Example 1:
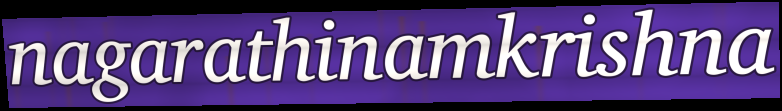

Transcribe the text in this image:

nagarathinamkrishna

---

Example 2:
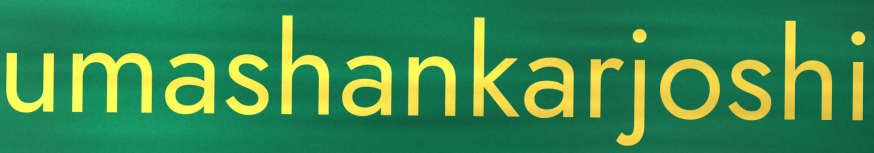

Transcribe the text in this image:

umashankarjoshi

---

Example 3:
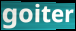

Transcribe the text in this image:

goiter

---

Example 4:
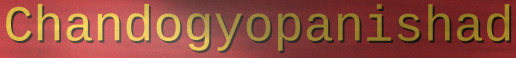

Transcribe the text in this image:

Chandogyopanishad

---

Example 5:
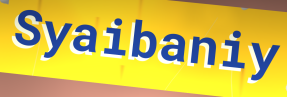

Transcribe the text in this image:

Syaibaniy